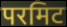
परमिट